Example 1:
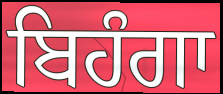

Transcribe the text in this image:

ਬਿਹੰਗਾ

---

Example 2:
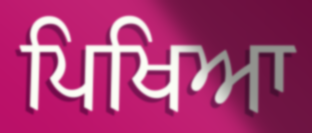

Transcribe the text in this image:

ਪਿਖਿਆ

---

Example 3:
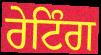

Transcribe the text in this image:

ਰੇਟਿੰਗ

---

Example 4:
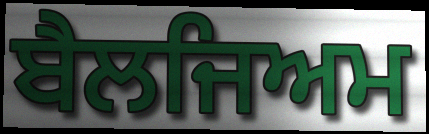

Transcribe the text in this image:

ਬੈਲਜਿਅਮ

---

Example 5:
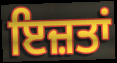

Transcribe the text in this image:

ਇਜ਼ਤਾਂ